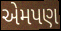
એમપણ